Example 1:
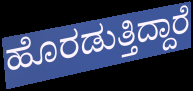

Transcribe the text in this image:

ಹೊರಡುತ್ತಿದ್ದಾರೆ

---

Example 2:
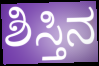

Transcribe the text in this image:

ಶಿಸ್ತಿನ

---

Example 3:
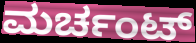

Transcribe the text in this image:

ಮರ್ಚಂಟ್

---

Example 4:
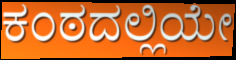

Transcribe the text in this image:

ಕಂಠದಲ್ಲಿಯೇ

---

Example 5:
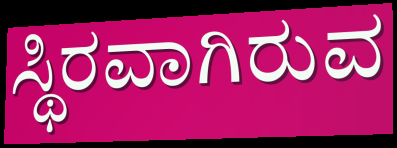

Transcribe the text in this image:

ಸ್ಥಿರವಾಗಿರುವ